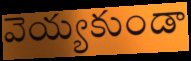
వెయ్యకుండా